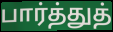
பார்த்துத்